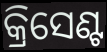
କ୍ରିସେଣ୍ଟ